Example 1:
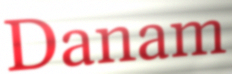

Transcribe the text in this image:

Danam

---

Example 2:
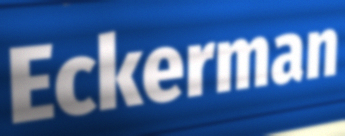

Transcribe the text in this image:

Eckerman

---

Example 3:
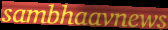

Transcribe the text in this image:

sambhaavnews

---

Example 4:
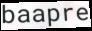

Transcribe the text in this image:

baapre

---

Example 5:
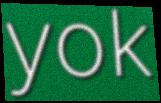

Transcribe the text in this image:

yok